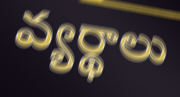
వ్యర్థాలు